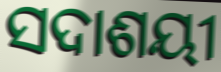
ସଦାଶୟୀ